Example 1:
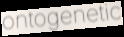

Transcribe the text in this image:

ontogenetic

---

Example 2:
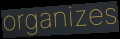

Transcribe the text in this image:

organizes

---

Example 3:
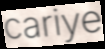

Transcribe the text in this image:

cariye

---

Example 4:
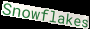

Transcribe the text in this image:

Snowflakes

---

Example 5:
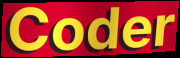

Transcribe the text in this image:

Coder